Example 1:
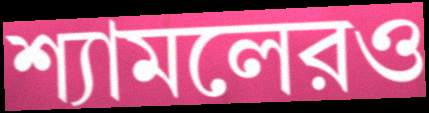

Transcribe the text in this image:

শ্যামলেরও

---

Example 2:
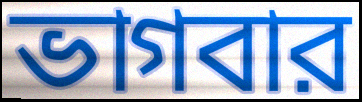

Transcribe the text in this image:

ভাগবার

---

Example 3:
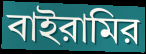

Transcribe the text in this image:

বাইরামির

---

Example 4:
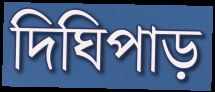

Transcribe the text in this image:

দিঘিপাড়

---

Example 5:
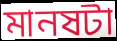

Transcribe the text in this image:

মানষটা